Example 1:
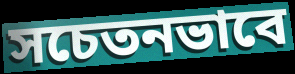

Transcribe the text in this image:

সচেতনভাবে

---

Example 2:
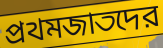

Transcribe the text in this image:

প্রথমজাতদের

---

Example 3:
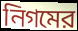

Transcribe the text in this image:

নিগমের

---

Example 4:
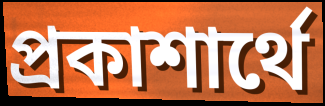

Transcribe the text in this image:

প্রকাশার্থে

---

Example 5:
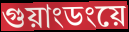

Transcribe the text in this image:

গুয়াংডংয়ে